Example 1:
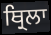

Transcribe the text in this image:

ਥ੍ਰਿਲਾ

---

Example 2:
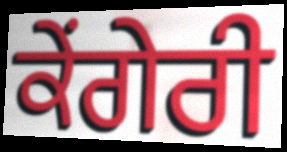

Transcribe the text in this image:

ਕੇਂਗੇਰੀ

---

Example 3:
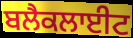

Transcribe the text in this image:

ਬਲੈਕਲਾਈਟ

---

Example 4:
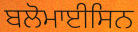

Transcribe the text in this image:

ਬਲੋਮਾਈਸਿਨ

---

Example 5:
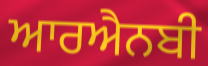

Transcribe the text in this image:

ਆਰਐਨਬੀ